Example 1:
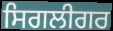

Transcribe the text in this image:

ਸਿਗਲੀਗਰ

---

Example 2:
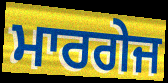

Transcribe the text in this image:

ਮਾਰਗੇਜ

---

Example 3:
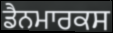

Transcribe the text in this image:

ਡੈਨਮਾਰਕਸ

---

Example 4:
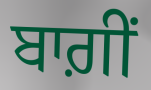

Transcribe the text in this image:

ਬਾਗ਼ੀਂ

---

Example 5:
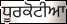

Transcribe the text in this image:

ਧੂਰਕੋਟੀਆ